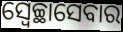
ସ୍ୱେଚ୍ଛାସେବାର